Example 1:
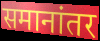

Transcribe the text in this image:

समानांतर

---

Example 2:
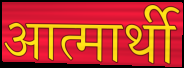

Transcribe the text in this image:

आत्मार्थी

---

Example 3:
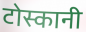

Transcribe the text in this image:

टोस्कानी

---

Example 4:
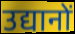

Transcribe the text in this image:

उद्यानों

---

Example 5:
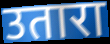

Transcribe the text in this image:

उतारा